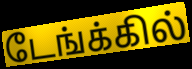
டேங்க்கில்